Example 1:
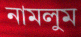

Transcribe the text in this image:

নামলুম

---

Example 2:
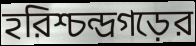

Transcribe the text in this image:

হরিশ্চন্দ্রগড়ের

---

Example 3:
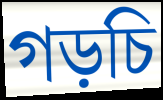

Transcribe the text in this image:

গড়চি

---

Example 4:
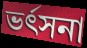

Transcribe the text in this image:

ভর্ৎসনা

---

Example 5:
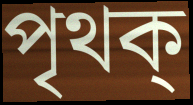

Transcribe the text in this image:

পৃথক্